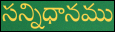
సన్నిధానము